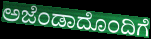
ಅಜೆಂಡಾದೊಂದಿಗೆ